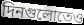
দিনগুলোতেও